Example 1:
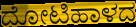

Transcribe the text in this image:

ದೋಟಿಹಾಳದ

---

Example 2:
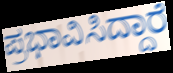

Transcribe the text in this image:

ಪ್ರಭಾವಿಸಿದ್ದಾರೆ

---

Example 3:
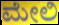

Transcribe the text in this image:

ಮೇಲಿ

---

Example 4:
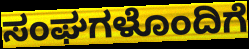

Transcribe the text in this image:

ಸಂಘಗಳೊಂದಿಗೆ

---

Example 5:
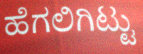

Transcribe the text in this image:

ಹೆಗಲಿಗಿಟ್ಟು